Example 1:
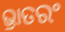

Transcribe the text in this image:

ଭ୍ରାତରଂ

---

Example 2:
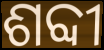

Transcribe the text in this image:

ଶବ୍ଦୀ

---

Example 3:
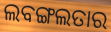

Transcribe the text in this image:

ଲବଙ୍ଗଲତାର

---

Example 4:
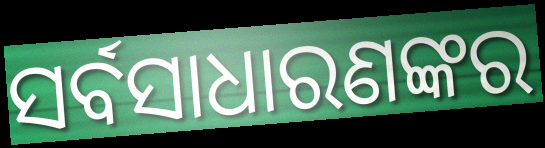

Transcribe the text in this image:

ସର୍ବସାଧାରଣଙ୍କର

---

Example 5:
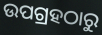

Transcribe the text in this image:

ଉପଗ୍ରହଠାରୁ